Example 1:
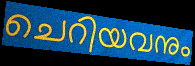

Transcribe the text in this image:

ചെറിയവനും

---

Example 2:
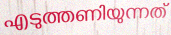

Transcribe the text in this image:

എടുത്തണിയുന്നത്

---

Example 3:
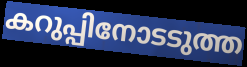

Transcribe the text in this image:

കറുപ്പിനോടടുത്ത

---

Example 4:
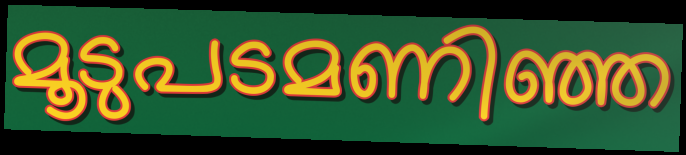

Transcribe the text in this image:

മൂടുപടമണിഞ്ഞ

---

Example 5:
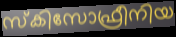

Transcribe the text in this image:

സ്കിസോഫ്രീനിയ